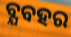
ବ୍ଯବହର